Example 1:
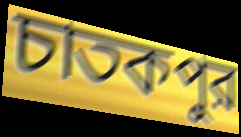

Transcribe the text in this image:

চাতকপুর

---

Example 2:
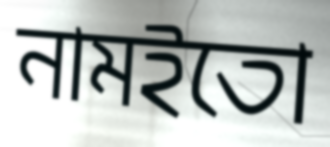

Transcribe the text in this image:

নামইতো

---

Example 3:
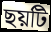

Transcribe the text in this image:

ছয়টি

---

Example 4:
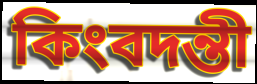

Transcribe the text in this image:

কিংবদন্তী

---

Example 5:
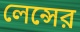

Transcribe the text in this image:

লেন্সের